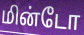
மின்டோ